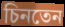
চিনতেন